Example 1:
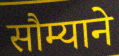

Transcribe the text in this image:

सौम्याने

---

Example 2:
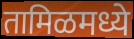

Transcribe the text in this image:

तामिळमध्ये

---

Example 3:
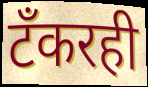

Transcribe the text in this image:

टँकरही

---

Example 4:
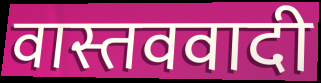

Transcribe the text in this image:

वास्तववादी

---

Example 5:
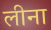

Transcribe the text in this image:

लीना